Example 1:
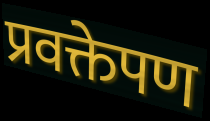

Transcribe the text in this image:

प्रवक्तेपण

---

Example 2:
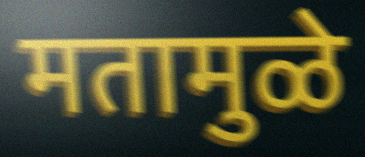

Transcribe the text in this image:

मतामुळे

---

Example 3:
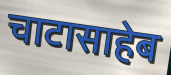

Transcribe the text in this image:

चाटासाहेब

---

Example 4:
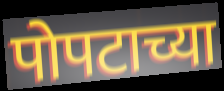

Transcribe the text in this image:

पोपटाच्या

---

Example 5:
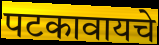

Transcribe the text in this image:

पटकावायचे